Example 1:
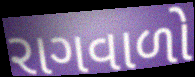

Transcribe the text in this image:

રાગવાળો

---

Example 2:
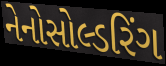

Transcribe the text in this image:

નેનોસોલ્ડરિંગ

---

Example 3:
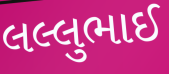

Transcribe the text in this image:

લલ્લુભાઈ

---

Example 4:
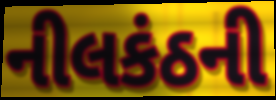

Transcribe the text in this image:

નીલકંઠની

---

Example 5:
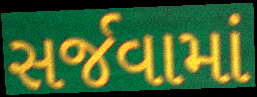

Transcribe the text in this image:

સર્જવામાં